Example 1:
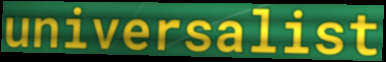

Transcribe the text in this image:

universalist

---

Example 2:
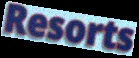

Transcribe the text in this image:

Resorts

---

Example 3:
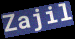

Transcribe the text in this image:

Zajil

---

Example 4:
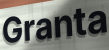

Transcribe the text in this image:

Granta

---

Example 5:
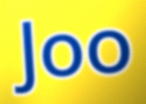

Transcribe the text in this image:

Joo